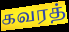
கவரத்